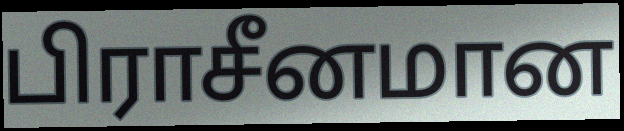
பிராசீனமான